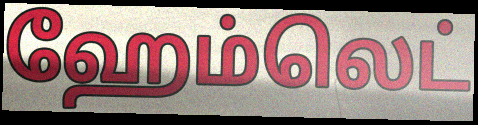
ஹேம்லெட்